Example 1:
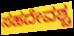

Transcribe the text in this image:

ಸಹದೇವಶ್ಚ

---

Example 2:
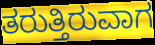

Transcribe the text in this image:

ತರುತ್ತಿರುವಾಗ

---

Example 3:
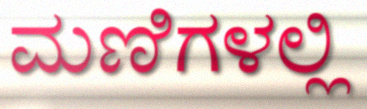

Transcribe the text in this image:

ಮಣಿಗಳಲ್ಲಿ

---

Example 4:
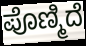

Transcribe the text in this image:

ಪೊಣ್ಮಿದೆ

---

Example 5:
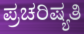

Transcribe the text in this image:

ಪ್ರಚರಿಷ್ಯತಿ